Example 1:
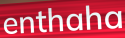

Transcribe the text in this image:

enthaha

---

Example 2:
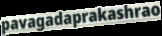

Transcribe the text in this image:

pavagadaprakashrao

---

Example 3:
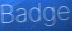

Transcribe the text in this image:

Badge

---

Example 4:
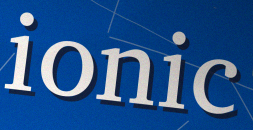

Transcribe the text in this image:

ionic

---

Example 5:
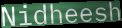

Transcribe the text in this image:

Nidheesh